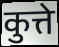
कुत्ते